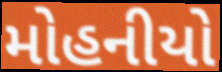
મોહનીયો